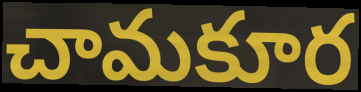
చామకూర